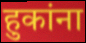
हुकांना